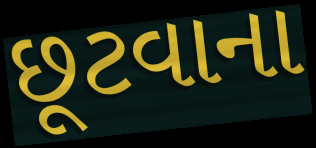
છૂટવાના